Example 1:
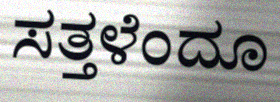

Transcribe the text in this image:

ಸತ್ತಳೆಂದೂ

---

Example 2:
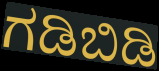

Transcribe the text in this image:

ಗಡಿಬಿಡಿ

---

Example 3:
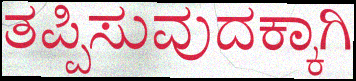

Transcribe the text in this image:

ತಪ್ಪಿಸುವುದಕ್ಕಾಗಿ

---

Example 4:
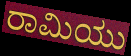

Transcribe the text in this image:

ರಾಮಿಯು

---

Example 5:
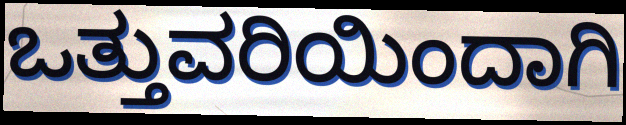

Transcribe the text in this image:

ಒತ್ತುವರಿಯಿಂದಾಗಿ